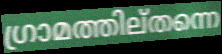
ഗ്രാമത്തില്തന്നെ